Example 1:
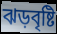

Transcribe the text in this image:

ঝড়বৃষ্টি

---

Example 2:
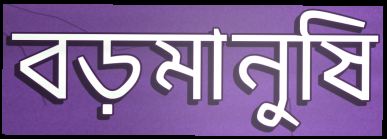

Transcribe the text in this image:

বড়মানুষি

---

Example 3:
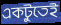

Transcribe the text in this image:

একটুতেই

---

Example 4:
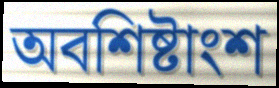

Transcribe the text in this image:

অবশিষ্টাংশ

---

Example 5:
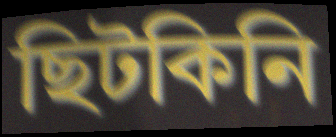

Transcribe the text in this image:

ছিটকিনি